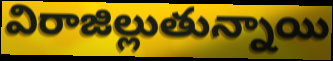
విరాజిల్లుతున్నాయి